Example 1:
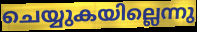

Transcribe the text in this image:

ചെയ്യുകയില്ലെന്നു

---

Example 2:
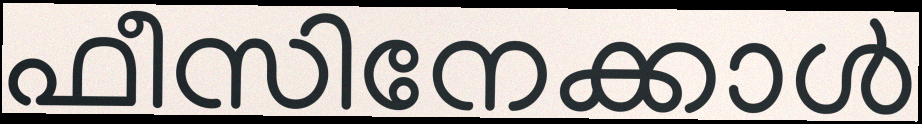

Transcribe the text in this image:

ഫീസിനേക്കാൾ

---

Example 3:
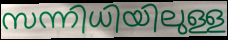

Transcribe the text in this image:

സന്നിധിയിലുള്ള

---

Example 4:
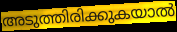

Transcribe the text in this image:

അടുത്തിരിക്കുകയാൽ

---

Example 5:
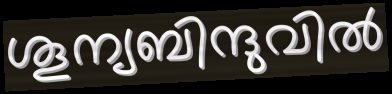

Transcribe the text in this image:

ശൂന്യബിന്ദുവിൽ